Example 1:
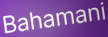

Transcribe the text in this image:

Bahamani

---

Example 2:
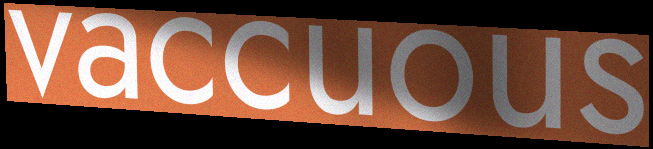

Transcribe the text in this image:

vaccuous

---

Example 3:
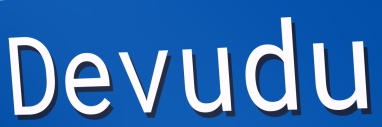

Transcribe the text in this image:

Devudu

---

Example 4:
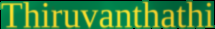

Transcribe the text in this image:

Thiruvanthathi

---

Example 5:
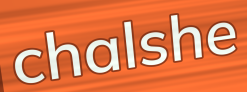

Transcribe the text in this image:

chalshe